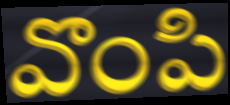
వొంపి